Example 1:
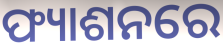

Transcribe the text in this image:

ଫ୍ୟାଶନରେ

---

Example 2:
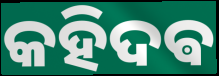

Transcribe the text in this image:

କହିଦଵ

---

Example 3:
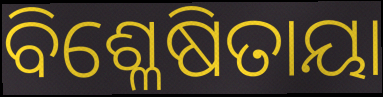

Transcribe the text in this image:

ବିଶ୍ଳେଷିତାୟା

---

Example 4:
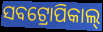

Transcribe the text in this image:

ସବଟ୍ରୋପିକାଲ୍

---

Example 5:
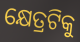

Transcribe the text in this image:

କ୍ଷେତ୍ରଟିକୁ